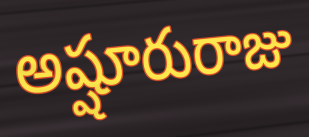
అష్షూరురాజు